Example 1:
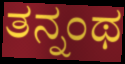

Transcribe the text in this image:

ತನ್ನಂಥ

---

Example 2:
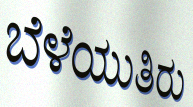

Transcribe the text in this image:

ಬೆಳೆಯುತಿರು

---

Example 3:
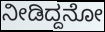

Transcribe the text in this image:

ನೀಡಿದ್ದನೋ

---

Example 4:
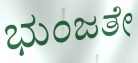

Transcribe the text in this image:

ಭುಂಜತೇ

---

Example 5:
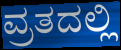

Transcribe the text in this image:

ವ್ರತದಲ್ಲಿ